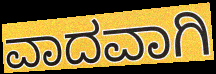
ವಾದವಾಗಿ